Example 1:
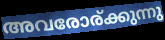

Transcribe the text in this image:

അവരോര്ക്കുന്നു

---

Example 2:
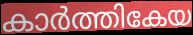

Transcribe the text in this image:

കാർത്തികേയ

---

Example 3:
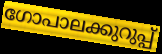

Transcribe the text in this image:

ഗോപാലക്കുറുപ്പ്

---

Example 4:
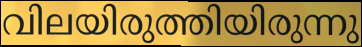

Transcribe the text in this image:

വിലയിരുത്തിയിരുന്നു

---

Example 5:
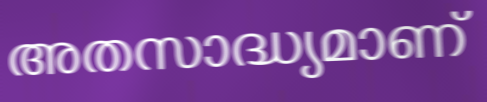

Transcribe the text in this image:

അതസാദ്ധ്യമാണ്